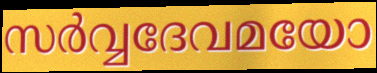
സർവ്വദേവമയോ